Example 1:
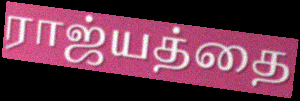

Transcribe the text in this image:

ராஜ்யத்தை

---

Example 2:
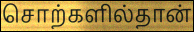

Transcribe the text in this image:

சொற்களில்தான்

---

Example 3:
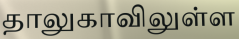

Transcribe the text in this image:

தாலுகாவிலுள்ள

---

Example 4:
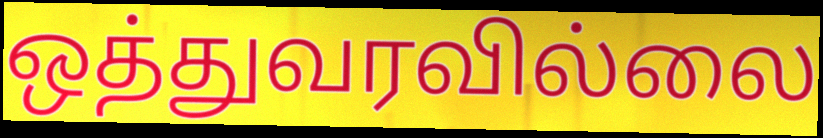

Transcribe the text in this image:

ஒத்துவரவில்லை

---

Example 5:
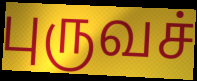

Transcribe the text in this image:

புருவச்